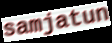
samjatun